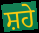
ਸ਼ਹੇ